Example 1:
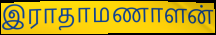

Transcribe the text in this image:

இராதாமணாளன்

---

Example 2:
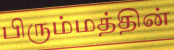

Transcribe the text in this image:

பிரும்மத்தின்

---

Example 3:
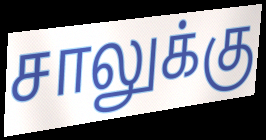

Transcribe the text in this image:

சாலுக்கு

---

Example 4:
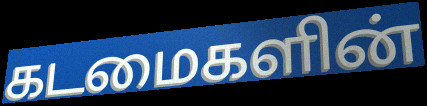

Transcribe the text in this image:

கடமைகளின்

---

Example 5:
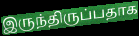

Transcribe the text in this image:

இருந்திருப்பதாக